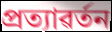
প্ৰত্যাৱৰ্তন